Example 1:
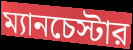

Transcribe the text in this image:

ম্যানচেস্টার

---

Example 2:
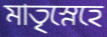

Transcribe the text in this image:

মাতৃস্নেহে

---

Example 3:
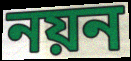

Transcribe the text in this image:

নয়ন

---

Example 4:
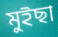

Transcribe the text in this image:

মুইছা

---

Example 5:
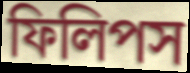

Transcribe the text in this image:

ফিলিপস